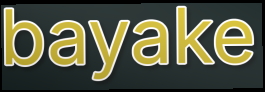
bayake